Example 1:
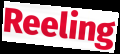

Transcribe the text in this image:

Reeling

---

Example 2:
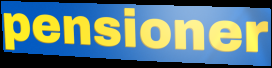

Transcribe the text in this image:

pensioner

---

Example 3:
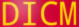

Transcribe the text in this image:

DICM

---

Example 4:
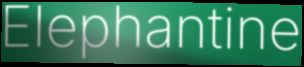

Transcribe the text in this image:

Elephantine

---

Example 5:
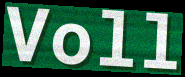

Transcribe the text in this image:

Voll